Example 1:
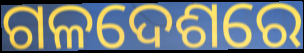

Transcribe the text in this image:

ଗଳଦେଶରେ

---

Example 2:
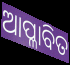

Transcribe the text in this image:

ଆପ୍ଳାବିତ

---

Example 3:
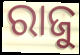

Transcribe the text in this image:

ରାଜୁ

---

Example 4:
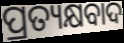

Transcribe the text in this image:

ପ୍ରତ୍ୟକ୍ଷବାଦ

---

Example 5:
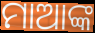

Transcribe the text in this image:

ମାଆଙ୍କ